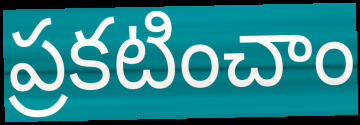
ప్రకటించాం